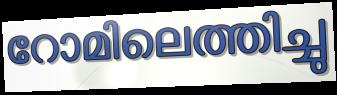
റോമിലെത്തിച്ചു